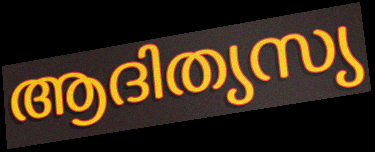
ആദിത്യസ്യ